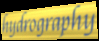
hydrography